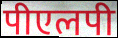
पीएलपी